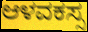
ಆಳವಕಸ್ಸ